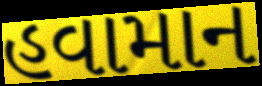
હવામાન